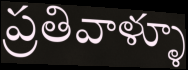
ప్రతివాళ్ళూ